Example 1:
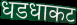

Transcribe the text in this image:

धडधाकट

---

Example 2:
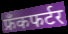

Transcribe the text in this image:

फ्रँकफर्टर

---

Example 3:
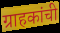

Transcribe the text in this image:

ग्राहकांची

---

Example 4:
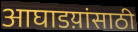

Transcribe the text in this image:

आघाडय़ांसाठी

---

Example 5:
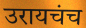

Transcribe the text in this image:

उरायचंच